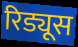
रिड्यूस